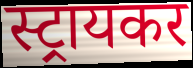
स्ट्रायकर